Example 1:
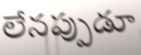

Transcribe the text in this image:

లేనప్పుడూ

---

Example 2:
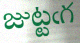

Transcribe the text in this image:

జుట్టఁగ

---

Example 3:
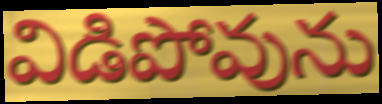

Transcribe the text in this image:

విడిపోవును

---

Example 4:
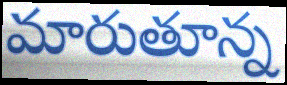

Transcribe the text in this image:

మారుతూన్న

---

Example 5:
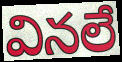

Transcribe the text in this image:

వినలే